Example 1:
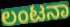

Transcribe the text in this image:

ಲಂಟನಾ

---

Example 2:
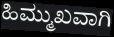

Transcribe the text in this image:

ಹಿಮ್ಮುಖವಾಗಿ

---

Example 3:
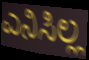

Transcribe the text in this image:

ಎನಿಸಿಲ್ಲ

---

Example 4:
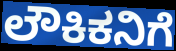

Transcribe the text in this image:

ಲೌಕಿಕನಿಗೆ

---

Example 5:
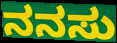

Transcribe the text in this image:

ನನಸು